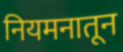
नियमनातून